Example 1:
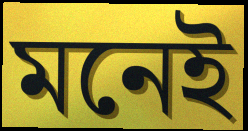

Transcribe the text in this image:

মনেই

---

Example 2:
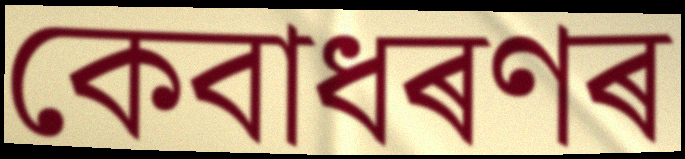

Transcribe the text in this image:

কেবাধৰণৰ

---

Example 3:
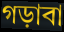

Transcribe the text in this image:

গড়াবা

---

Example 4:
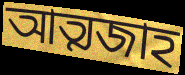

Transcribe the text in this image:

আত্মজাহ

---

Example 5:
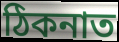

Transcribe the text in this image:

ঠিকনাত